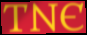
TNE